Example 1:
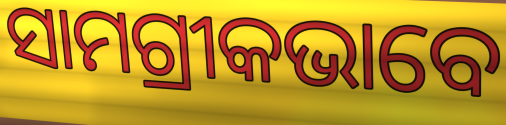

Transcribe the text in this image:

ସାମଗ୍ରୀକଭାବେ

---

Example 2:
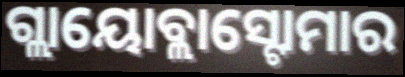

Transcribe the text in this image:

ଗ୍ଲାୟୋବ୍ଲାସ୍ଟୋମାର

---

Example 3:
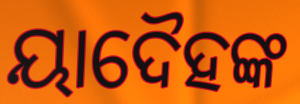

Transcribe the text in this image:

ୟାଦୈହଙ୍କ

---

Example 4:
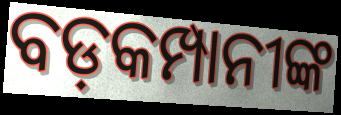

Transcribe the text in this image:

ବଡ଼କମ୍ପାନୀଙ୍କ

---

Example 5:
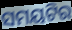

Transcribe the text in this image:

ସମୟଟିର